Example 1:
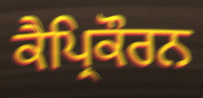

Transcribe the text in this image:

ਕੈਪ੍ਰਿਕੌਰਨ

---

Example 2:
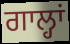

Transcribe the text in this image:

ਗਾਲ੍ਹਾਂ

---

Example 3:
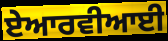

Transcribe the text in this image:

ਏਆਰਵੀਆਈ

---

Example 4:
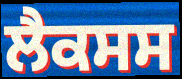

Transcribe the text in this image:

ਲੈਕਸਸ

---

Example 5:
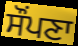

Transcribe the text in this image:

ਸੌਂਪਣਾ